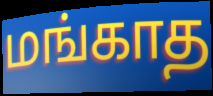
மங்காத